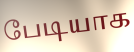
பேடியாக